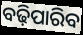
ବଢ଼ିପାରିବ